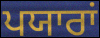
ਪਯਾਰਾਂ